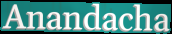
Anandacha